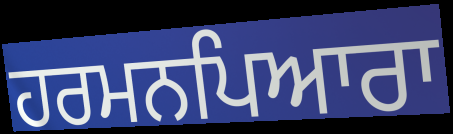
ਹਰਮਨਪਿਆਰਾ